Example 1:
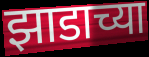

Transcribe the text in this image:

झाडाच्या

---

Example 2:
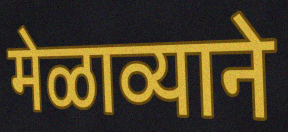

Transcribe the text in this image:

मेळाव्याने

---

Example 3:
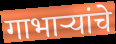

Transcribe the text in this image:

गाभाऱ्यांचे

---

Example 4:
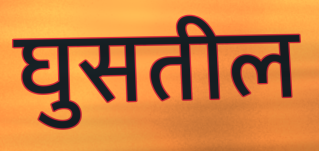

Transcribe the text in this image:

घुसतील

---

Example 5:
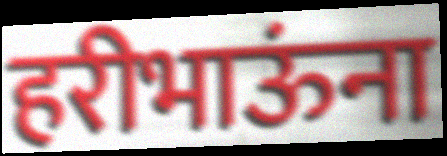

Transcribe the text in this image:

हरीभाऊंना